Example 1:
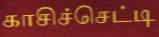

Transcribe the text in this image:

காசிச்செட்டி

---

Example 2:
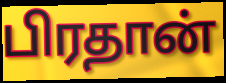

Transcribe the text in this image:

பிரதான்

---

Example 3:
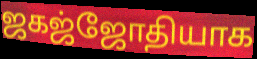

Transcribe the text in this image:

ஜகஜ்ஜோதியாக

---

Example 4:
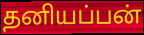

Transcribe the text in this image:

தனியப்பன்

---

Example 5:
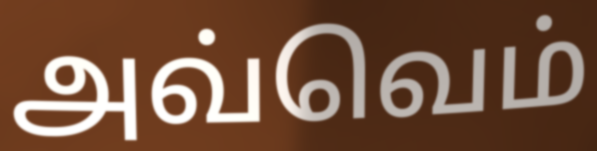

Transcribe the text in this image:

அவ்வெம்